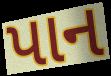
પાન